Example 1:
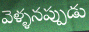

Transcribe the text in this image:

వెళ్ళనప్పుడు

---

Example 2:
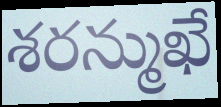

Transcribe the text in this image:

శరన్ముఖే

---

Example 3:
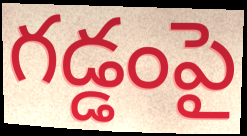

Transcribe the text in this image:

గడ్డంపై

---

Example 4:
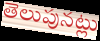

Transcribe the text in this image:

తెలుపునట్లు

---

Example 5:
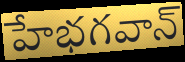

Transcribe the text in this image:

హేభగవాన్